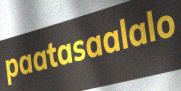
paatasaalalo